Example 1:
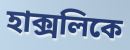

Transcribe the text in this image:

হাক্সলিকে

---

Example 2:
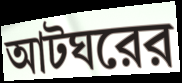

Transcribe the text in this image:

আটঘরের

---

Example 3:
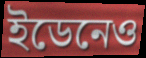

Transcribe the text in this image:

ইডেনেও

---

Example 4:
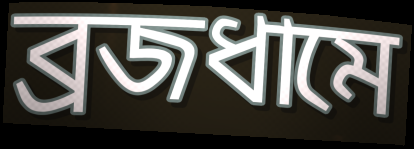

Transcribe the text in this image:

ব্রজধামে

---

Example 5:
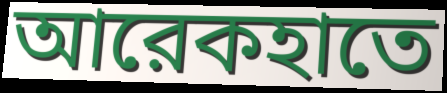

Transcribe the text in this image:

আরেকহাতে